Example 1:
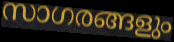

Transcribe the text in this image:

സാഗരങ്ങളും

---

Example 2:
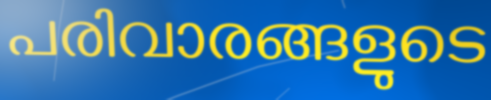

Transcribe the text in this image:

പരിവാരങ്ങളുടെ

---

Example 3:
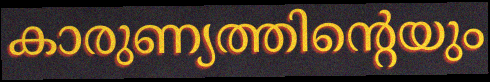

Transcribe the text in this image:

കാരുണ്യത്തിന്റെയും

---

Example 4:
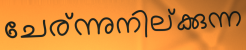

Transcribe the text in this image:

ചേര്ന്നുനില്ക്കുന്ന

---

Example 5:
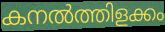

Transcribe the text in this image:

കനൽത്തിളക്കം